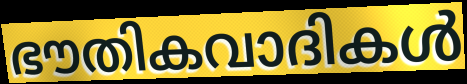
ഭൗതികവാദികൾ